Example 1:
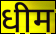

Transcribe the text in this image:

धीम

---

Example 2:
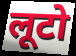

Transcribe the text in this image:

लूटो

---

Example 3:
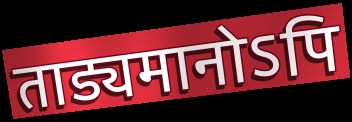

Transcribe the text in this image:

ताड्यमानोऽपि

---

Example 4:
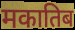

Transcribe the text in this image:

मकातिब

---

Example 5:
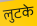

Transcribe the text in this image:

लुटके